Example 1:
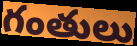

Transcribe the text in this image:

గంతులు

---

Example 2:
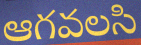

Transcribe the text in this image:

ఆగవలసి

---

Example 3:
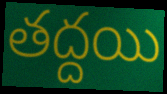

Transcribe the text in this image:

తద్దయి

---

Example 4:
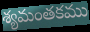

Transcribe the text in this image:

శ్యమంతకము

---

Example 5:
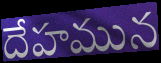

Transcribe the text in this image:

దేహమున